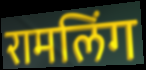
रामलिंग